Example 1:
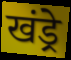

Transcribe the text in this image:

खंड्रे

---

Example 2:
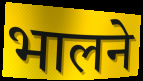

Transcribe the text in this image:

भालने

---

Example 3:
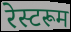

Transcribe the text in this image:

रेस्टरूम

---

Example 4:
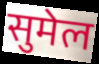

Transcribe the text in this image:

सुमेल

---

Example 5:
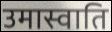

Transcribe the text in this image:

उमास्वाति